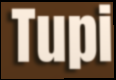
Tupi